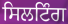
ਸਿਲਟਿੰਗ